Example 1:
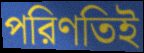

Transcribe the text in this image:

পরিণতিই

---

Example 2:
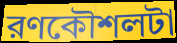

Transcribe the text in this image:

রণকৌশলটা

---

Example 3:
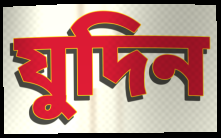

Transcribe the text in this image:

যুদিন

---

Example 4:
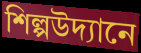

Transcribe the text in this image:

শিল্পউদ্যানে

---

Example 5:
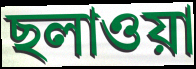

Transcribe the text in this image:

ছলাওয়া